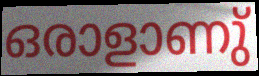
ഒരാളാണു്